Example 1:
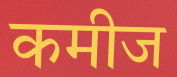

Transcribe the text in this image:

कमीज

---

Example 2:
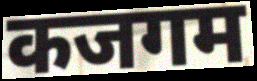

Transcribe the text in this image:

कजगम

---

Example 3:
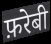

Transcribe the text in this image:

फ़रेबी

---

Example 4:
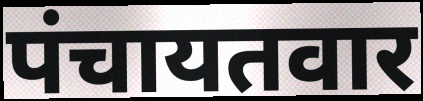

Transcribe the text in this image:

पंचायतवार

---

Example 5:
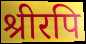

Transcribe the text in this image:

श्रीरपि